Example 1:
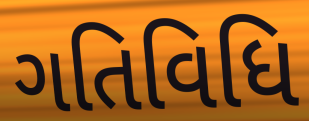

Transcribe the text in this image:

ગતિવિધિ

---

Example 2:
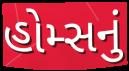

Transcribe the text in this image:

હોમ્સનું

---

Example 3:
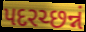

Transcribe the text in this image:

પદરચ્છન્નં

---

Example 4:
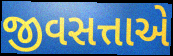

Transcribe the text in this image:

જીવસત્તાએ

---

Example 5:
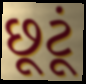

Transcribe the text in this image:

છૂટૂં